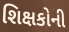
શિક્ષકોની